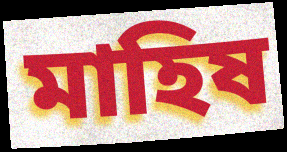
মাহিষ